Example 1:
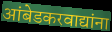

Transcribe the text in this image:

आंबेडकरवाद्यांना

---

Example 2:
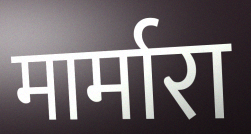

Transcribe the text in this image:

मार्मारा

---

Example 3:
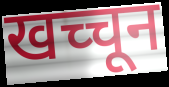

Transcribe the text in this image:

खच्चून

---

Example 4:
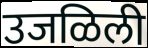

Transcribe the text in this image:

उजळिली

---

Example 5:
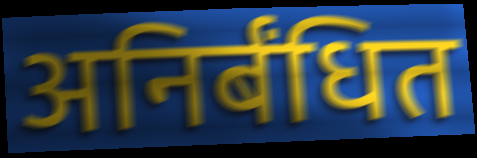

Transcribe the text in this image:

अनिर्बंधित